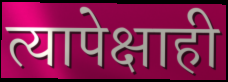
त्यापेक्षाही